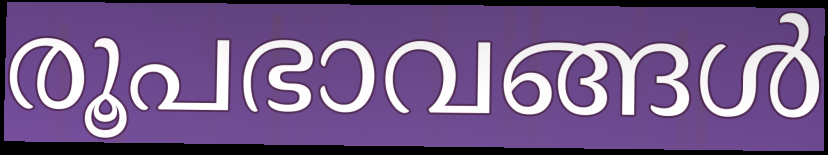
രൂപഭാവങ്ങൾ